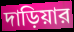
দাড়িয়ার